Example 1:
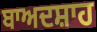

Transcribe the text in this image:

ਬਾਅਦਸ਼ਾਹ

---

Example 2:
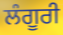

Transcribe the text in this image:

ਲੰਗੂਰੀ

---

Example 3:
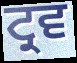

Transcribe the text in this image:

ਟ੍ਰਵ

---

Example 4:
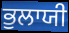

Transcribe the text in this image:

ਭੁਲਾਯੀ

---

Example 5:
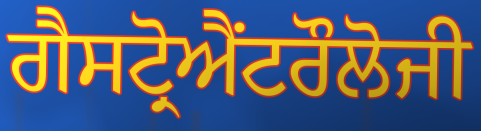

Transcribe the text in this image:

ਗੈਸਟ੍ਰੋਐਂਟਰੌਲੋਜੀ